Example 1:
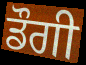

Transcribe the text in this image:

ਡੌਗੀ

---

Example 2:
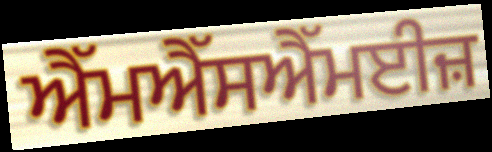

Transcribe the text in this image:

ਐੱਮਐੱਸਐੱਮਈਜ਼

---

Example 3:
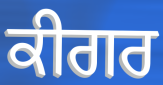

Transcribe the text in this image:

ਕੀਗਰ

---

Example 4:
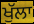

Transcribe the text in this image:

ਖੁੱਲਾ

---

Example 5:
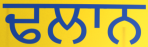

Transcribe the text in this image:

ਢਲਾਨ